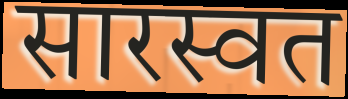
सारस्वत